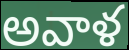
అవాళ